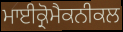
ਮਾਈਕ੍ਰੋਮੈਕਨੀਕਲ